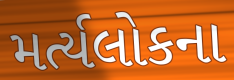
મર્ત્યલોકના